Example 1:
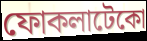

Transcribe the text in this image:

ফোকলাটেকো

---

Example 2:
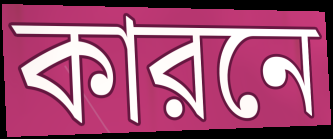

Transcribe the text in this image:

কারনে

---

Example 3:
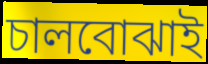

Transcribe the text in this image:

চালবোঝাই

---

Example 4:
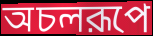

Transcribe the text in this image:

অচলরূপে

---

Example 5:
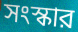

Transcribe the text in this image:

সংস্কার